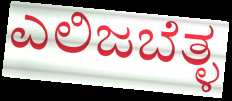
ಎಲಿಜಬೆತ್ಳ